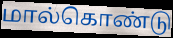
மால்கொண்டு